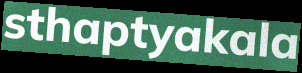
sthaptyakala